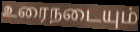
உரைநடையும்